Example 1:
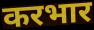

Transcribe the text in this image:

करभार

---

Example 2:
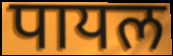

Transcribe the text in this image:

पायल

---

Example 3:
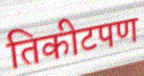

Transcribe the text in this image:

तिकीटपण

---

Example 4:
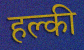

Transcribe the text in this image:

हल्की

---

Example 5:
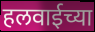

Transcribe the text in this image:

हलवाईच्या